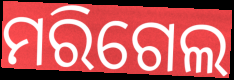
ମରିଗେଲ